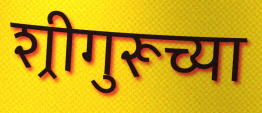
श्रीगुरूच्या